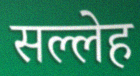
सल्लेह